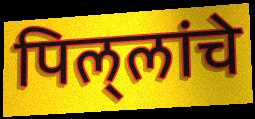
पिल्लांचे